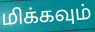
மிக்கவும்